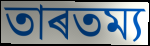
তাৰতম্য